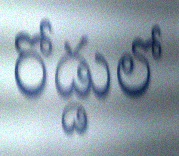
రోడ్డులో